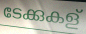
ടേക്കുകള്